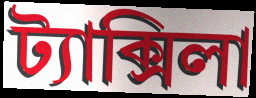
ট্যাক্সিলা